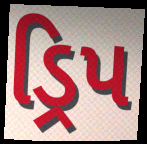
ડ્રિપ